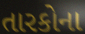
તારકોના